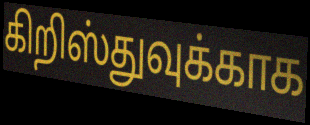
கிறிஸ்துவுக்காக